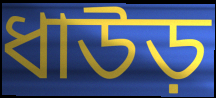
ধাউড়